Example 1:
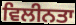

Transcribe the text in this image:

ਵਿਲੀਨਤਾ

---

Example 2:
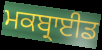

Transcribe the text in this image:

ਮਕਬ੍ਰਾਈਡ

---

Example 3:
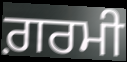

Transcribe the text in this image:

ਗ਼ਰਮੀ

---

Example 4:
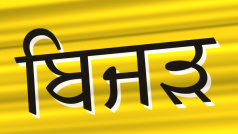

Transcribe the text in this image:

ਬਿਜੜ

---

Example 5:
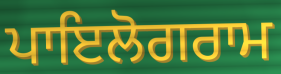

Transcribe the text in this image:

ਪਾਇਲੋਗਰਾਮ